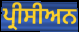
ਪ੍ਰੀਸੀਅਨ